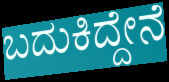
ಬದುಕಿದ್ದೇನೆ